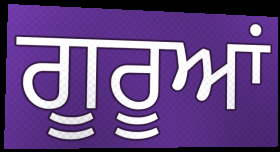
ਗੂਰੂਆਂ